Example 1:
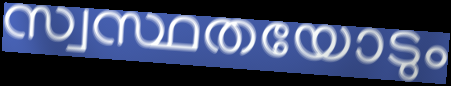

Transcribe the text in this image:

സ്വസ്ഥതയോടും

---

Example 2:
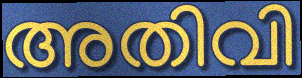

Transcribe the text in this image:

അതിവി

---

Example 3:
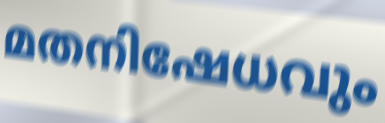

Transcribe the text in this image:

മതനിഷേധവും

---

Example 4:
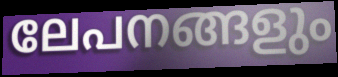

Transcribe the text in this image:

ലേപനങ്ങളും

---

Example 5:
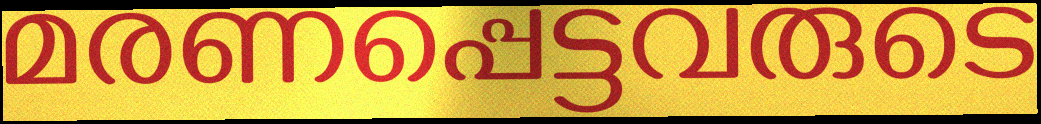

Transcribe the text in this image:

മരണപ്പെട്ടവരുടെ